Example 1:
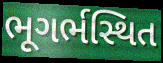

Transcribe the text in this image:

ભૂગર્ભસ્થિત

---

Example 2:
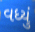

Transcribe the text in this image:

વધ્યું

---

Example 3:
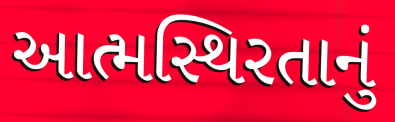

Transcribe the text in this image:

આત્મસ્થિરતાનું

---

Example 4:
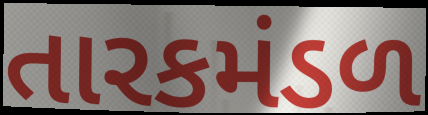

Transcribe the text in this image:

તારકમંડળ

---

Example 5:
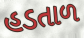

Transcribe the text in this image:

હડતાળ